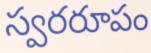
స్వరరూపం